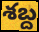
శబ్ద